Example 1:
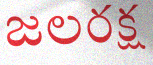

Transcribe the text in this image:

జలరక్ష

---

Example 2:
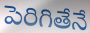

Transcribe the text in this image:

పెరిగితేనే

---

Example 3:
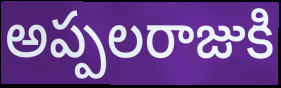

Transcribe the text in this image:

అప్పలరాజుకి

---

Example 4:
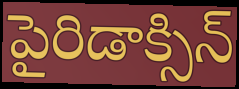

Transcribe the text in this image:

పైరిడాక్సిన్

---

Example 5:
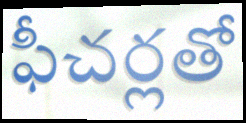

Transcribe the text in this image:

ఫీచర్లతో